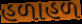
હળાહળ